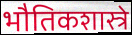
भौतिकशास्त्रे